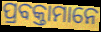
ପ୍ରବକ୍ତାମାନେ